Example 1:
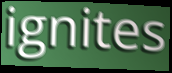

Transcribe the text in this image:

ignites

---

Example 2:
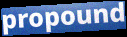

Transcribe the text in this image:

propound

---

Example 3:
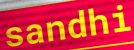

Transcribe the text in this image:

sandhi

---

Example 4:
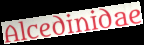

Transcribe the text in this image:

Alcedinidae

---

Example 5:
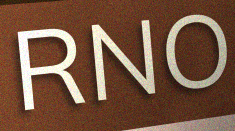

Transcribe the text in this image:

RNO